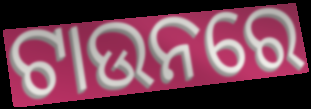
ଟାଉନରେ